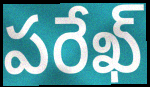
పరేఖ్